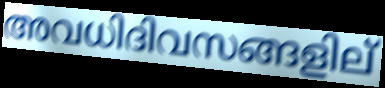
അവധിദിവസങ്ങളില്